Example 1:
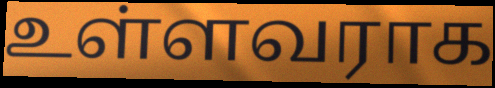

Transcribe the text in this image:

உள்ளவராக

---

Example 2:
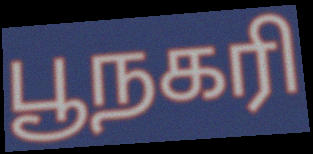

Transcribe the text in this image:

பூநகரி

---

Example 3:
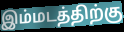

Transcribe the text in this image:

இம்மடத்திற்கு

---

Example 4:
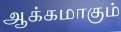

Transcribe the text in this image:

ஆக்கமாகும்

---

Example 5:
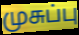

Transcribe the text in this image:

முசுப்பு